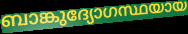
ബാങ്കുദ്യോഗസ്ഥയായ